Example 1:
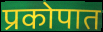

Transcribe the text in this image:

प्रकोपात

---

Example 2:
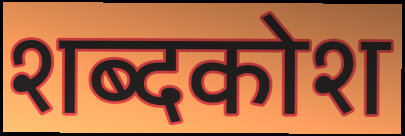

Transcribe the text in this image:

शब्दकोश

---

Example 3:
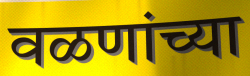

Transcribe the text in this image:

वळणांच्या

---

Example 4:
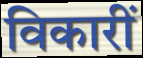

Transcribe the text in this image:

विकारीं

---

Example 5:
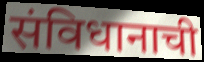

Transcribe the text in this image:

संविधानाची